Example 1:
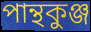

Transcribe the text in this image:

পান্থকুঞ্জ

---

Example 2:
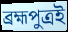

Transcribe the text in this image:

ব্রহ্মপুত্রই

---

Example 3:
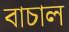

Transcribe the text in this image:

বাচাল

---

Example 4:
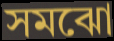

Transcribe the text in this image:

সমঝো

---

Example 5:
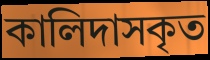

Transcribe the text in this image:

কালিদাসকৃত